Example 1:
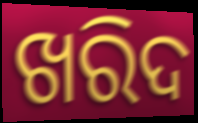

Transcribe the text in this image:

ଖରିଦ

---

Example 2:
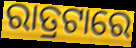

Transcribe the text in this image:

ରାତ୍ରଟାରେ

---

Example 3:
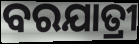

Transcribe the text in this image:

ବରଯାତ୍ରୀ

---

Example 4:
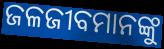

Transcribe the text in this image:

ଜଳଜୀବମାନଙ୍କୁ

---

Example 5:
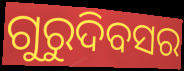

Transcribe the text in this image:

ଗୁରୁଦିବସର